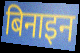
बिनाइन